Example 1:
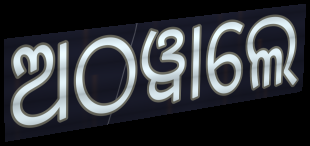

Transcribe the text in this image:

ଅଠୱାଲେ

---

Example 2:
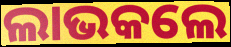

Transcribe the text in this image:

ଲାଭକଲେ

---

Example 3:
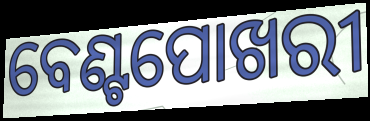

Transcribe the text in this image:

ବେଣ୍ଟପୋଖରୀ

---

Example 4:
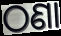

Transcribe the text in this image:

ଠଣା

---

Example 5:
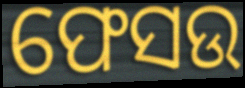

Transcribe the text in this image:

ଫେସଉ